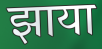
झाया